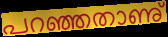
പറഞ്ഞതാണു്